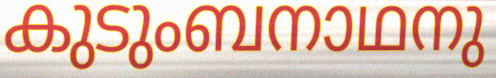
കുടുംബനാഥനു